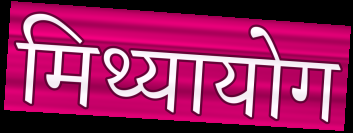
मिथ्यायोग